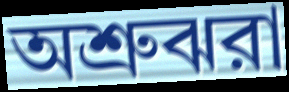
অশ্রুঝরা